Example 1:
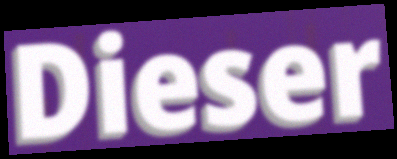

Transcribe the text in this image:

Dieser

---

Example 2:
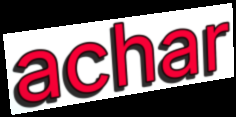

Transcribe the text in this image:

achar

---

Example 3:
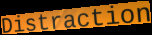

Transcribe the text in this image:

Distraction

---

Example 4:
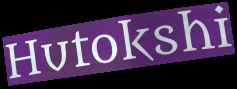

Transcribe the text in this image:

Hutokshi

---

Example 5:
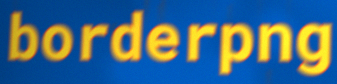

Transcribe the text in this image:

borderpng